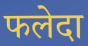
फलेदा